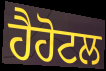
ਹੈਹੋਟਲ